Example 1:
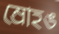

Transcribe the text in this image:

ম্রোহঙ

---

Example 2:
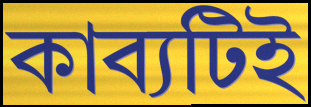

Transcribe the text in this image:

কাব্যটিই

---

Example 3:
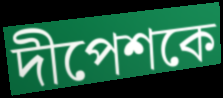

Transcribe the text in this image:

দীপেশকে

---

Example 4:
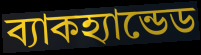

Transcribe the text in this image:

ব্যাকহ্যান্ডেড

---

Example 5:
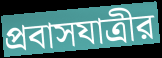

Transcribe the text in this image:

প্রবাসযাত্রীর